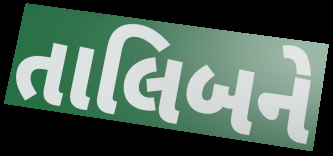
તાલિબને